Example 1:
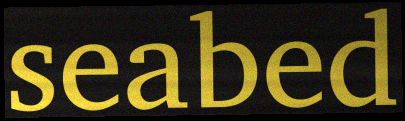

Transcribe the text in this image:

seabed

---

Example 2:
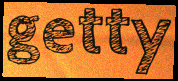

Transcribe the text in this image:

getty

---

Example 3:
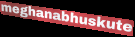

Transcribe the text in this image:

meghanabhuskute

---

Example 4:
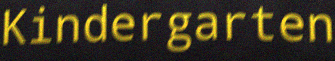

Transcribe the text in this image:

Kindergarten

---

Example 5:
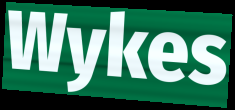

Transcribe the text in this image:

Wykes